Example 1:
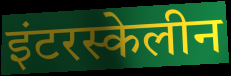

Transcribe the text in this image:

इंटरस्केलीन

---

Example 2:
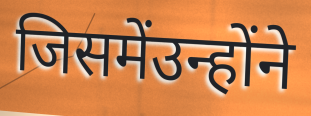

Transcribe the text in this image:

जिसमेंउन्होंने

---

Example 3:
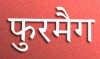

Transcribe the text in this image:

फुरमैग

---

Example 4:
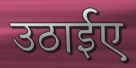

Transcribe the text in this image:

उठाईए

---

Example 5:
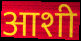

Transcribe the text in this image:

आशी